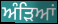
ਅੰੜਿਆਂ